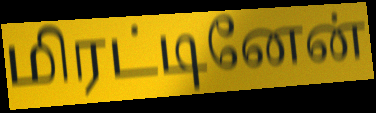
மிரட்டினேன்